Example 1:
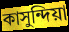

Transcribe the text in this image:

কাসুন্দিয়া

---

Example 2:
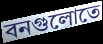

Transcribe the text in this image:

বনগুলোতে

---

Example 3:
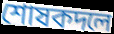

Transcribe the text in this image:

শোষকদলে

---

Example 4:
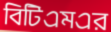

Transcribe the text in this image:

বিটিএমএর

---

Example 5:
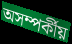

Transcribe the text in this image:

অসম্পর্কীয়